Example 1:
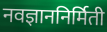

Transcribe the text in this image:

नवज्ञाननिर्मिती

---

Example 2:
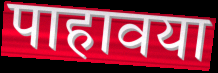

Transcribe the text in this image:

पाहावया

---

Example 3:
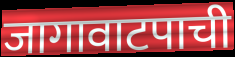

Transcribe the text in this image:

जागावाटपाची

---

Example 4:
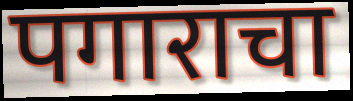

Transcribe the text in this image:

पगाराचा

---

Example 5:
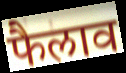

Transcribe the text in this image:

फैलाव